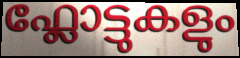
ഫ്ലോട്ടുകളും